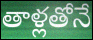
తాళ్లతోనే